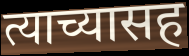
त्याच्यासह